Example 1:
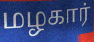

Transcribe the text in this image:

மழகார்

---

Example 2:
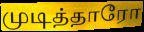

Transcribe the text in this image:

முடித்தாரோ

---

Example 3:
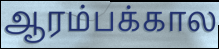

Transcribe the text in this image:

ஆரம்பக்கால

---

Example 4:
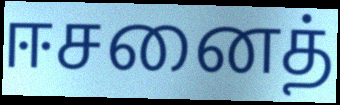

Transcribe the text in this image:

ஈசனைத்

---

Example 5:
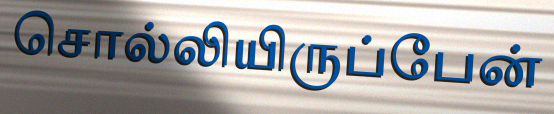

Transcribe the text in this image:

சொல்லியிருப்பேன்